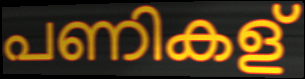
പണികള്